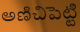
అణిచిపెట్టి